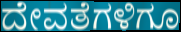
ದೇವತೆಗಳಿಗೂ